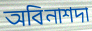
অবিনাশদা